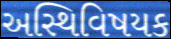
અસ્થિવિષયક